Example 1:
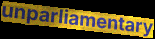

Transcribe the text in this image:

unparliamentary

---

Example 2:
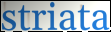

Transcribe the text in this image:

striata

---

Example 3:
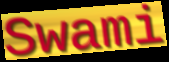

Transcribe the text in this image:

Swami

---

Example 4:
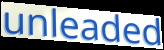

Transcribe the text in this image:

unleaded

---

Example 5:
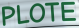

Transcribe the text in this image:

PLOTE